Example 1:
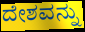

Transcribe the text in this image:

ದೇಶವನ್ನು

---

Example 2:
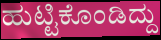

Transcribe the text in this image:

ಹುಟ್ಟಿಕೊಂಡಿದ್ದು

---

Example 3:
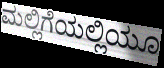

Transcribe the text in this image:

ಮಲ್ಲಿಗೆಯಲ್ಲಿಯೂ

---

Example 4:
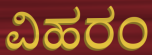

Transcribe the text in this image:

ವಿಹರಂ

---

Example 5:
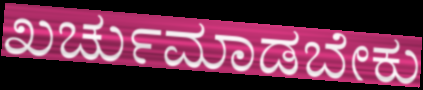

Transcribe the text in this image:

ಖರ್ಚುಮಾಡಬೇಕು